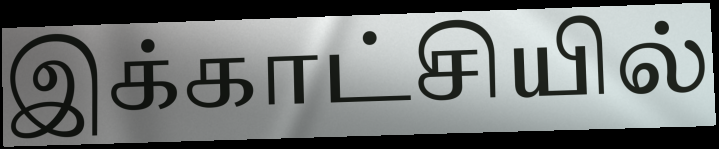
இக்காட்சியில்